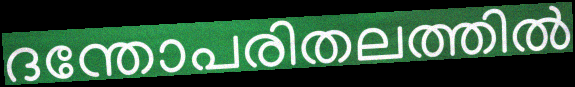
ദന്തോപരിതലത്തിൽ